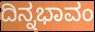
ದಿನ್ನಭಾವಂ